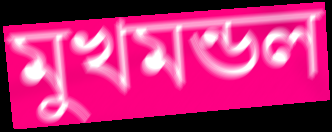
মুখমন্ডল